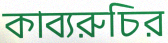
কাব্যরুচির